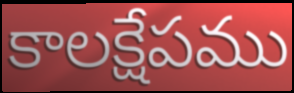
కాలక్షేపము